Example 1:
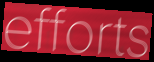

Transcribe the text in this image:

efforts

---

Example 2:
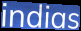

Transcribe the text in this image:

indias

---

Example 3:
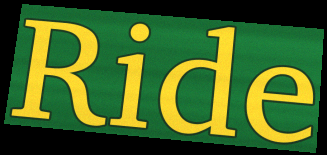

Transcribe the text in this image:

Ride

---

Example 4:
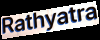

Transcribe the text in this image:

Rathyatra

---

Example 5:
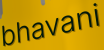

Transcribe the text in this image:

bhavani